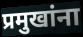
प्रमुखांना